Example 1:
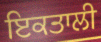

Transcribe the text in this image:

ਇਕਤਾਲੀ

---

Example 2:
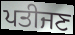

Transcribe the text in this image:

ਪਤੀਜਣ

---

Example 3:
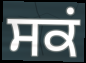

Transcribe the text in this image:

ਸਕਂ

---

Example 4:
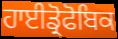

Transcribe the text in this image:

ਹਾਈਡ੍ਰੋਫੋਬਿਕ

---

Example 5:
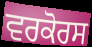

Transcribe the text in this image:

ਵਰਕੋਰਸ